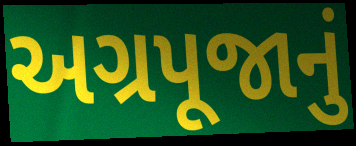
અગ્રપૂજાનું